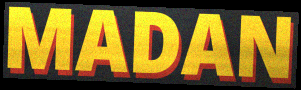
MADAN